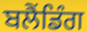
ਬਲੈਂਡਿੰਗ